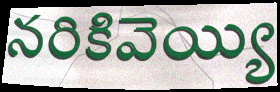
నరికివెయ్యి